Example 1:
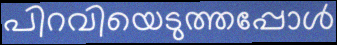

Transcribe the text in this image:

പിറവിയെടുത്തപ്പോൾ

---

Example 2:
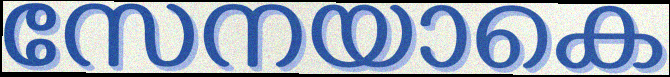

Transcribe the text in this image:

സേനയാകെ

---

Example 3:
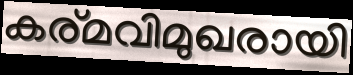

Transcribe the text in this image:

കര്മവിമുഖരായി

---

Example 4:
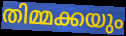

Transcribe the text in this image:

തിമ്മക്കയും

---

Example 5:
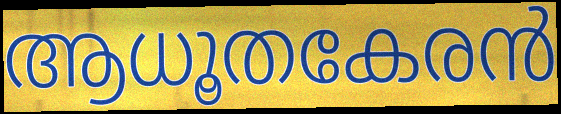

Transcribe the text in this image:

ആധൂതകേരൻ